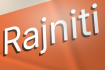
Rajniti